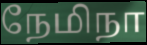
நேமிநா